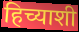
हिच्याशी